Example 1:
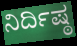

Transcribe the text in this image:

ನಿರ್ದಿಷ್ಠ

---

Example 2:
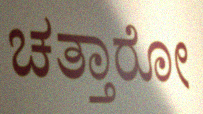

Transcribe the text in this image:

ಚತ್ತಾರೋ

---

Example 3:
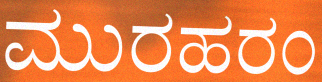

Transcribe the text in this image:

ಮುರಹರಂ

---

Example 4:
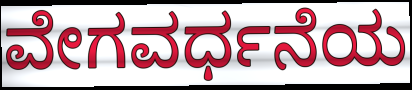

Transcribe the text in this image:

ವೇಗವರ್ಧನೆಯ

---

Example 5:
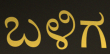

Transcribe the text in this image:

ಬಳಿಗ